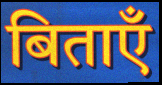
बिताएँ